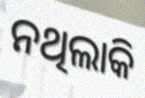
ନଥିଲାକି